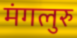
मंगलुरु